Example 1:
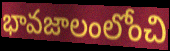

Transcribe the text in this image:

భావజాలంలోంచి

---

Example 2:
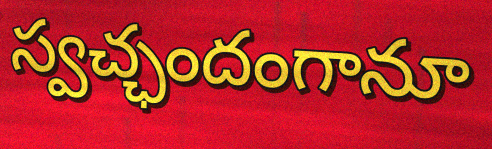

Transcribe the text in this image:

స్వచ్ఛందంగానూ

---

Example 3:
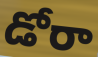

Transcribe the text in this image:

డోరా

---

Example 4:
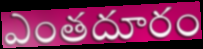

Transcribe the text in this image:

ఎంతదూరం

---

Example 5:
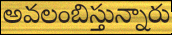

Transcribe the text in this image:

అవలంబిస్తున్నారు